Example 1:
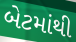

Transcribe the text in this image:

બેટમાંથી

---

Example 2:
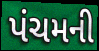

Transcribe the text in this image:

પંચમની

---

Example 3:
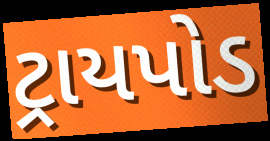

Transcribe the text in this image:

ટ્રાયપોડ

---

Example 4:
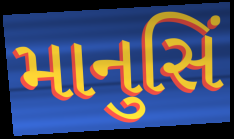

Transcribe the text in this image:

માનુસિં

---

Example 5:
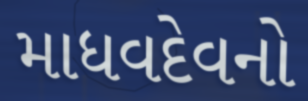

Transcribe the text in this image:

માધવદેવનો